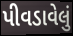
પીવડાવેલું